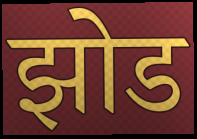
झोड